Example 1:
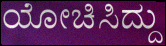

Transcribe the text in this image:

ಯೋಚಿಸಿದ್ದು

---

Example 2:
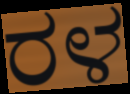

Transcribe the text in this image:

ರಳ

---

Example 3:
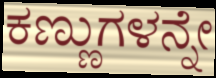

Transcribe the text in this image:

ಕಣ್ಣುಗಳನ್ನೇ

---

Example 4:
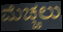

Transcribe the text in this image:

ಮೆಚ್ಚಲು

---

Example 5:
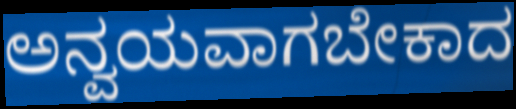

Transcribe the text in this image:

ಅನ್ವಯವಾಗಬೇಕಾದ